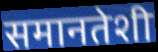
समानतेशी